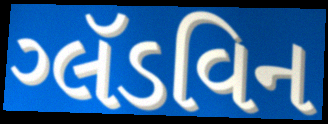
ગ્લૅડવિન